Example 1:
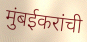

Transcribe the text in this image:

मुंबईकरांची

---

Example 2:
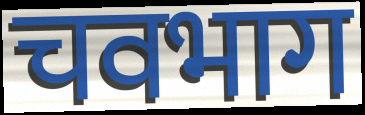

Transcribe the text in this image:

चवभाग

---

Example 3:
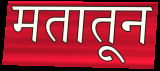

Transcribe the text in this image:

मतातून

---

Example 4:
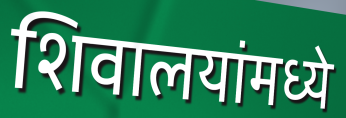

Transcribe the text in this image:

शिवालयांमध्ये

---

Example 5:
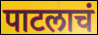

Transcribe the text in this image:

पाटलाचं